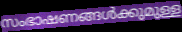
സംഭാഷണങ്ങൾക്കുമുള്ള